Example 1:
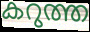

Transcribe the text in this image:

കറുത്ത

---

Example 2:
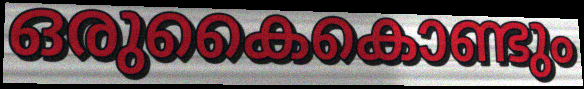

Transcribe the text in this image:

ഒരുകൈകൊണ്ടും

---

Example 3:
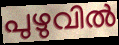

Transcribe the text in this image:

പുഴുവിൽ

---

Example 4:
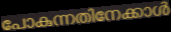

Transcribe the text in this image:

പോകുന്നതിനേക്കാൾ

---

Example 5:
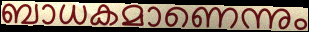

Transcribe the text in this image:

ബാധകമാണെന്നും